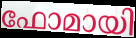
ഫോമായി